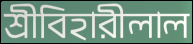
শ্রীবিহারীলাল